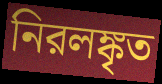
নিরলঙ্কৃত